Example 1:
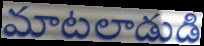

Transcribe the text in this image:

మాటలాడుడి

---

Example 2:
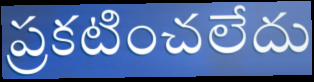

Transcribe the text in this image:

ప్రకటించలేదు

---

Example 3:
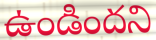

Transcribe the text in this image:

ఉండిందని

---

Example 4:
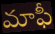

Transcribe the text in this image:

మాఫీ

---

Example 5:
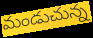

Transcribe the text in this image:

మండుచున్న